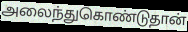
அலைந்துகொண்டுதான்